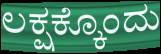
ಲಕ್ಷಕ್ಕೊಂದು